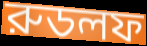
রুডলফ